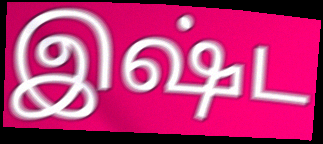
இஷ்ட